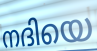
നദിയെ